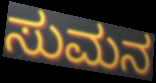
ಸುಮನ